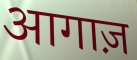
आगाज़